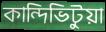
কান্দিভিটুয়া